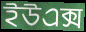
ইউএক্স